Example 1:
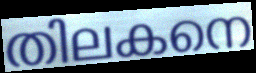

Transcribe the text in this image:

തിലകനെ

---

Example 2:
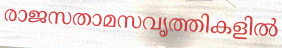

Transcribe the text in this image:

രാജസതാമസവൃത്തികളിൽ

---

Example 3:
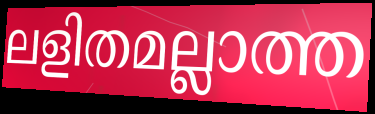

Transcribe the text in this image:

ലളിതമല്ലാത്ത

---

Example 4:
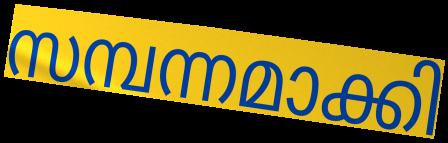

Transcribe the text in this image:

സമ്പന്നമാക്കി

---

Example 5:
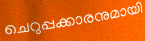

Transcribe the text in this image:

ചെറുപ്പക്കാരനുമായി